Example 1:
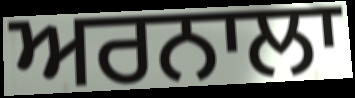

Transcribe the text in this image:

ਅਰਨਾਲਾ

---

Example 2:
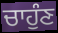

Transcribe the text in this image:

ਚਾਹੁੰਣ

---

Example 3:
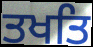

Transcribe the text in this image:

ਤਖਤਿ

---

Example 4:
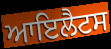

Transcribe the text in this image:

ਆਇਲੈਟਸ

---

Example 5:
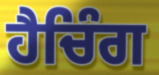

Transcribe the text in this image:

ਹੈਚਿੰਗ